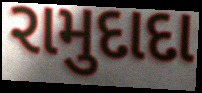
રામુદાદા